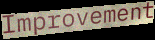
Improvement